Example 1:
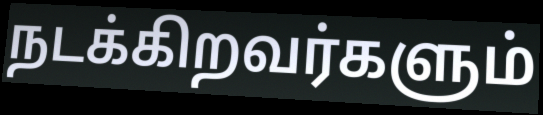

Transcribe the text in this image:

நடக்கிறவர்களும்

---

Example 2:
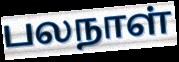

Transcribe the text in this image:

பலநாள்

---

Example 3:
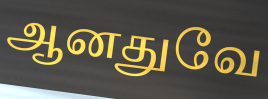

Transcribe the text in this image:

ஆனதுவே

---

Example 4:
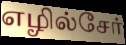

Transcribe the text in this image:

எழில்சேர்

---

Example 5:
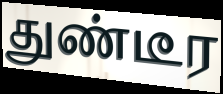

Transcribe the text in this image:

துண்டீர